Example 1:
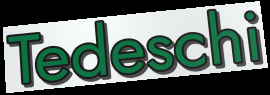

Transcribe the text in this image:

Tedeschi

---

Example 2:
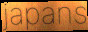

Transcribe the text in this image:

japans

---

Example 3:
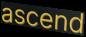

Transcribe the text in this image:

ascend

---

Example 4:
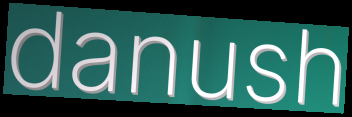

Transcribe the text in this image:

danush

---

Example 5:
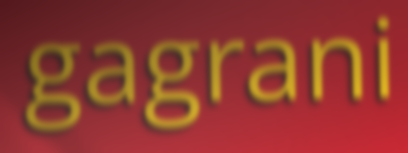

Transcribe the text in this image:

gagrani